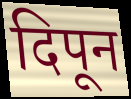
दिपून